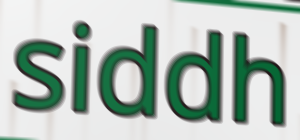
siddh